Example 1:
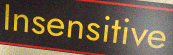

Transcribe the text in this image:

Insensitive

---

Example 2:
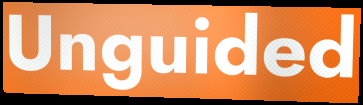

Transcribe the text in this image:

Unguided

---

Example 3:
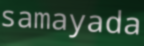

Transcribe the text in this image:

samayada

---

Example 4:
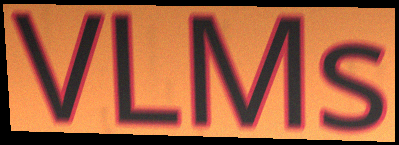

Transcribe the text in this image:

VLMs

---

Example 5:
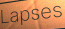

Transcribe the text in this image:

Lapses